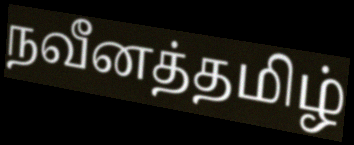
நவீனத்தமிழ்